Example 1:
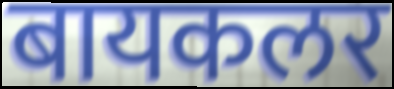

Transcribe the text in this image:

बायकलर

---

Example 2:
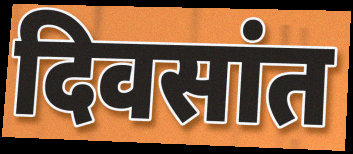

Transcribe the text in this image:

दिवसांत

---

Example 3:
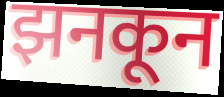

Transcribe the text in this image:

झनकून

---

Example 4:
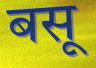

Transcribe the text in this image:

बसू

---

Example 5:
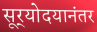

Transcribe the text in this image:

सूर्योदयानंतर